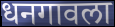
धनगावला